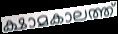
ക്ഷാമകാലത്ത്